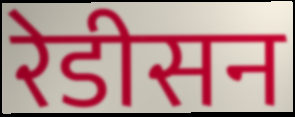
रेडीसन